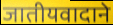
जातीयवादाने